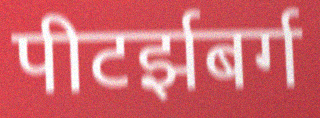
पीटर्झबर्ग